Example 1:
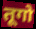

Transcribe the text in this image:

तूगो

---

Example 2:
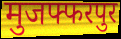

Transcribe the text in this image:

मुजफ्फरपुर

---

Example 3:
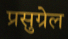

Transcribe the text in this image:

प्रसुग्रेल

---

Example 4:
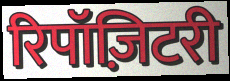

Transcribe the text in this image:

रिपॉज़िटरी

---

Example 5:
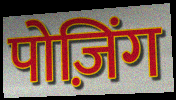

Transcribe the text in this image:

पोज़िंग